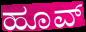
ಹೂವ್